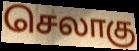
செலாகு